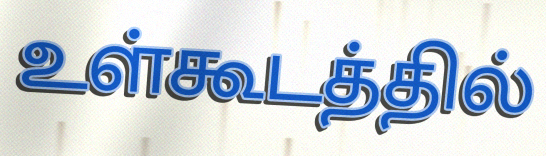
உள்கூடத்தில்